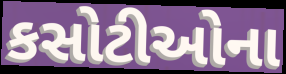
કસોટીઓના